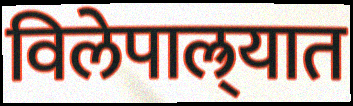
विलेपाल्र्यात